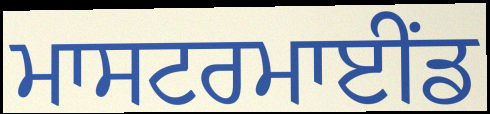
ਮਾਸਟਰਮਾਈਂਡ